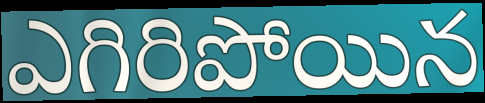
ఎగిరిపోయిన